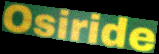
Osiride